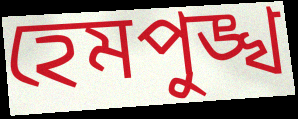
হেমপুঙ্খ